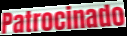
Patrocinado